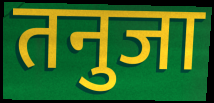
तनुजा